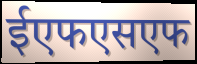
ईएफएसएफ